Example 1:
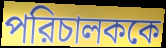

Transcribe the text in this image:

পরিচালককে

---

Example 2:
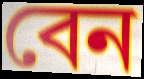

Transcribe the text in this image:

বেন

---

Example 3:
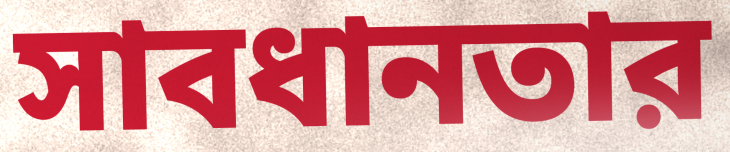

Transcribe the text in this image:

সাবধানতার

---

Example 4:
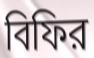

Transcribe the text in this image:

বিফির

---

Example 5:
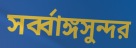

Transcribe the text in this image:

সর্ব্বাঙ্গসুন্দর